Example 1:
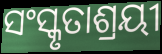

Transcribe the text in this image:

ସଂସ୍କୃତାଶ୍ରୟୀ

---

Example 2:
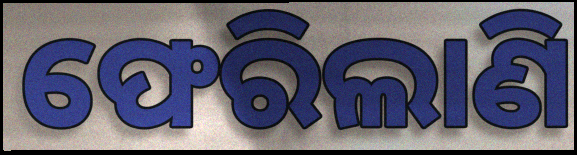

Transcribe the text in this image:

ଫେରିଲାଣି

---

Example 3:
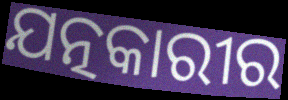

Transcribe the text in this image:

ଯତ୍ନକାରୀର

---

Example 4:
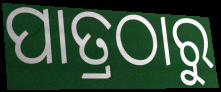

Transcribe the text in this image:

ପାତ୍ରଠାରୁ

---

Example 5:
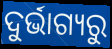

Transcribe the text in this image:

ଦୁର୍ଭାଗ୍ୟରୁ